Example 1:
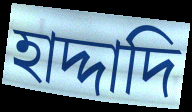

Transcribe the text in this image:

হাদ্দাদি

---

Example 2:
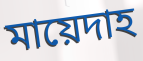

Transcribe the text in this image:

মায়েদাহ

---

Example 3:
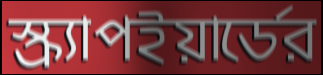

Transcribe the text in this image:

স্ক্র্যাপইয়ার্ডের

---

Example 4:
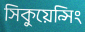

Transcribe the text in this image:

সিকুয়েন্সিং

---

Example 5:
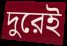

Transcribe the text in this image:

দুরেই